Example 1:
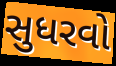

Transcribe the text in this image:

સુધરવો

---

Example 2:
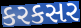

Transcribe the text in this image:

કરકસર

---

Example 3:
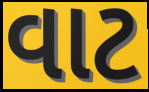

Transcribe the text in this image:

વાટ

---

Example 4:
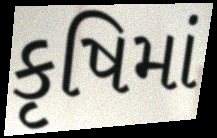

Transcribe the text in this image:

કૃષિમાં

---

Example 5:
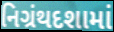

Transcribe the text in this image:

નિગ્રંથદશામાં